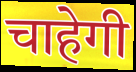
चाहेगी